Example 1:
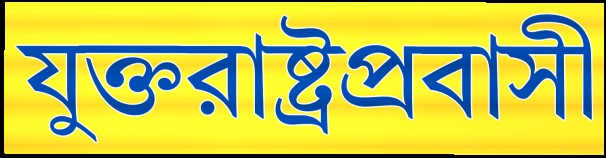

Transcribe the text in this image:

যুক্তরাষ্ট্রপ্রবাসী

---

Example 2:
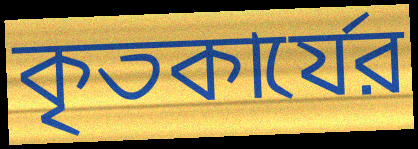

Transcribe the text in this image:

কৃতকার্যের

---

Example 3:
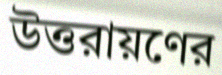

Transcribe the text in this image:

উত্তরায়ণের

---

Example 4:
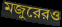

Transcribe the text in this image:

মজুরেরও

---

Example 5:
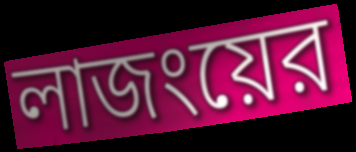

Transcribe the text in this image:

লাজংয়ের